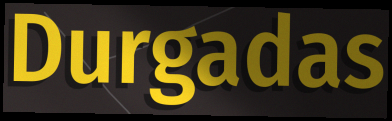
Durgadas